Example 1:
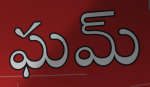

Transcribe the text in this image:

ఘమ్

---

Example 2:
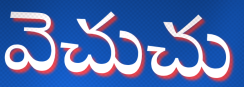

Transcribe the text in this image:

వెచుచు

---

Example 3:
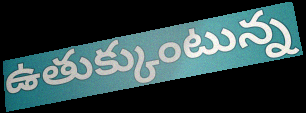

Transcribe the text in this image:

ఉతుక్కుంటున్న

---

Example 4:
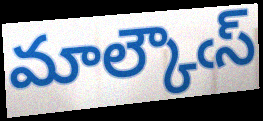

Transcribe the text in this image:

మాల్కౌఁస్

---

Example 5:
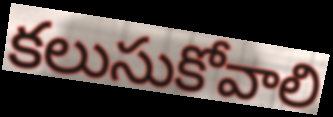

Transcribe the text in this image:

కలుసుకోవాలి